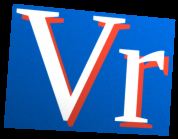
Vr